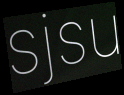
sjsu